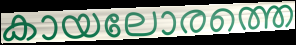
കായലോരത്തെ